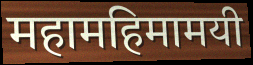
महामहिमामयी